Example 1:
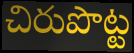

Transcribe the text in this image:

చిరుపొట్ట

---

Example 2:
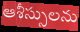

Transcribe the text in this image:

ఆశీస్సులను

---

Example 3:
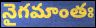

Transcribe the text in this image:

నైగమాంతః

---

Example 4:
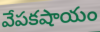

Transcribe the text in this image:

వేపకషాయం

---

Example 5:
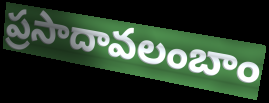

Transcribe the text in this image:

ప్రసాదావలంబాం